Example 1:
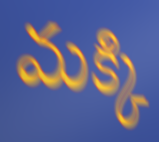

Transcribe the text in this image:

మక్కి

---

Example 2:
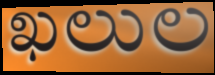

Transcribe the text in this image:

ఖలుల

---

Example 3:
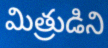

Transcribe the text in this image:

మిత్రుడిని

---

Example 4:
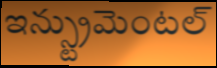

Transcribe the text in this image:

ఇన్స్ట్రుమెంటల్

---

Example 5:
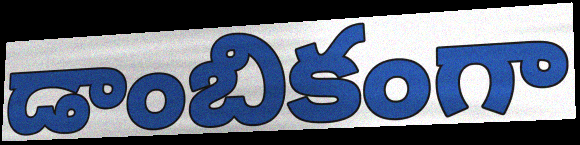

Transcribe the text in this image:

డాంబికంగా